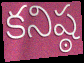
కనిష్ఠ